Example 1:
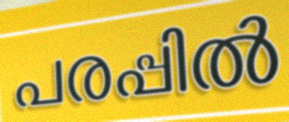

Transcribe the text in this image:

പരപ്പിൽ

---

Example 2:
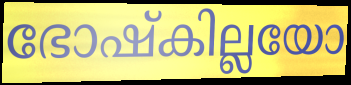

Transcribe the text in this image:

ഭോഷ്കില്ലയോ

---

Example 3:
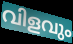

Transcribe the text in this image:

വിളവും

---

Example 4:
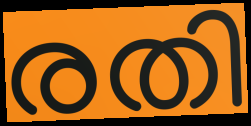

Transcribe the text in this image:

രതി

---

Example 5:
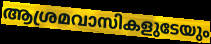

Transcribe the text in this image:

ആശ്രമവാസികളുടേയും